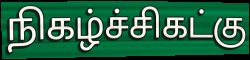
நிகழ்ச்சிகட்கு